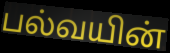
பல்வயின்